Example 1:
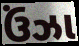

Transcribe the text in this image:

ઉંઝા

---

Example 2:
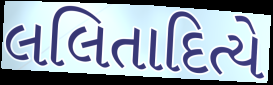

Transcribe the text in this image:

લલિતાદિત્યે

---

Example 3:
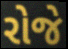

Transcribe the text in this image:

રોજે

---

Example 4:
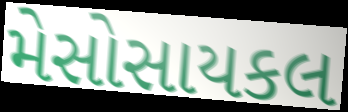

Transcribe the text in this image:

મેસોસાયકલ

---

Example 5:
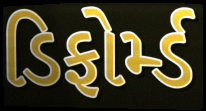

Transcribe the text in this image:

ડિફોર્મ્ડ